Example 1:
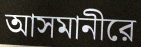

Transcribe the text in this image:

আসমানীরে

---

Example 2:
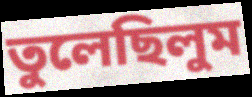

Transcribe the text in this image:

তুলেছিলুম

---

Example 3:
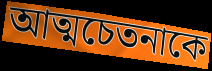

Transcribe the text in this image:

আত্মচেতনাকে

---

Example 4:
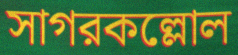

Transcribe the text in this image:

সাগরকল্লোল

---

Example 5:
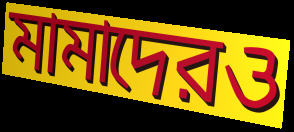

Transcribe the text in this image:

মামাদেরও